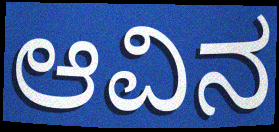
ಆವಿನ